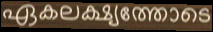
ഏകലക്ഷ്യത്തോടെ